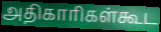
அதிகாரிகள்கூட